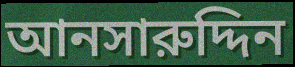
আনসারুদ্দিন